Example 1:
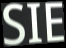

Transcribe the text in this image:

SIE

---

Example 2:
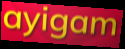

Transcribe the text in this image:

ayigam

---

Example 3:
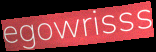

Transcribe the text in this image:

egowrisss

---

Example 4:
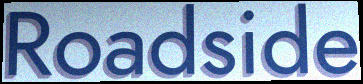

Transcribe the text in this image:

Roadside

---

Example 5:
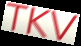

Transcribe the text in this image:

TKV